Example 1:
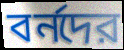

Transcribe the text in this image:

বর্নদের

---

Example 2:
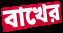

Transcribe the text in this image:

বাখের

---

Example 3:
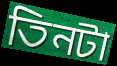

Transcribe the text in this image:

তিনটা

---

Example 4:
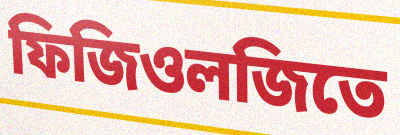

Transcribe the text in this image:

ফিজিওলজিতে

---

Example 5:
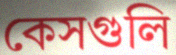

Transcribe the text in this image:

কেসগুলি